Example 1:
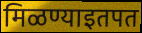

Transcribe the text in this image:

मिळण्याइतपत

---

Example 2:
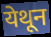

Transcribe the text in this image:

येथून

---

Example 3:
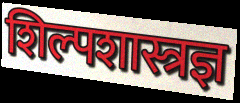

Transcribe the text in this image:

शिल्पशास्त्रज्ञ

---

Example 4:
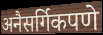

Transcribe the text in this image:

अनैसर्गिकपणे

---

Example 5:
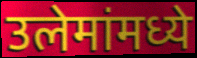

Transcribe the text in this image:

उलेमांमध्ये